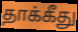
தாக்கீது